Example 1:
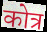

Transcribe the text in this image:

कोत्र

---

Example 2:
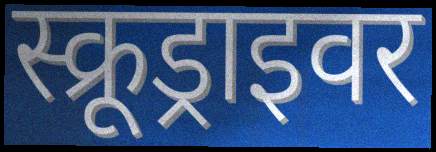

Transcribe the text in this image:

स्क्रूड्राइवर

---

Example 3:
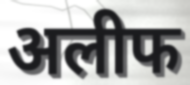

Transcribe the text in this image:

अलीफ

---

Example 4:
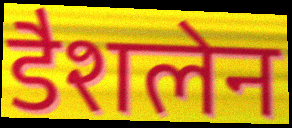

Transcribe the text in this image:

डैशलेन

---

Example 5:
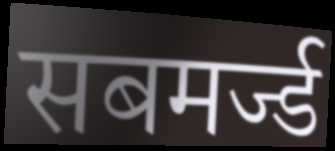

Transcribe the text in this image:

सबमर्ज्ड